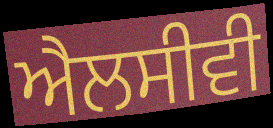
ਐਲਸੀਵੀ